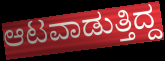
ಆಟವಾಡುತ್ತಿದ್ದ